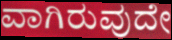
ವಾಗಿರುವುದೇ